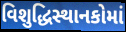
વિશુદ્ધિસ્થાનકોમાં